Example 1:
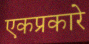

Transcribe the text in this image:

एकप्रकारे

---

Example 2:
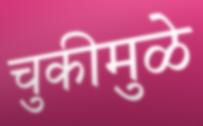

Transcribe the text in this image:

चुकीमुळे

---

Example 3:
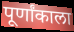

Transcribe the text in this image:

पूर्णांकाला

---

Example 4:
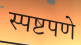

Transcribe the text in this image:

स्पष्टपणे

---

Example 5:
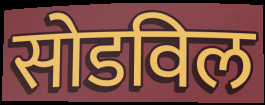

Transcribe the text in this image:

सोडविल